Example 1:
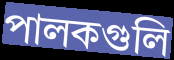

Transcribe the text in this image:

পালকগুলি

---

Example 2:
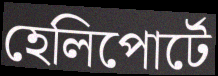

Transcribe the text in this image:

হেলিপোর্টে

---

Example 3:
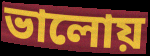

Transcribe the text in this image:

ভালোয়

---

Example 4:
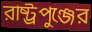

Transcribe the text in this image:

রাষ্ট্রপুঞ্জের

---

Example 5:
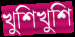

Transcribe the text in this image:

খুশিখুশি